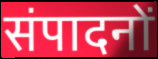
संपादनों